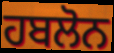
ਹਬਲੋਨ